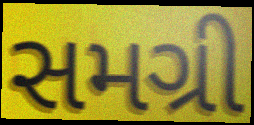
સમગ્રી